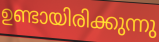
ഉണ്ടായിരിക്കുന്നു